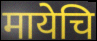
मायेचि